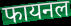
फायनल